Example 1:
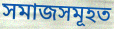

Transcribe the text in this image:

সমাজসমূহত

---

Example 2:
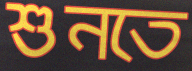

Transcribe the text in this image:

শুনতে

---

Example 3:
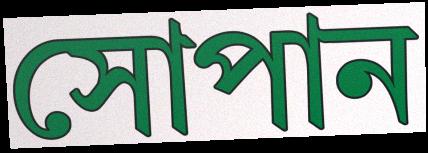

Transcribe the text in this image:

সোপান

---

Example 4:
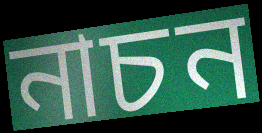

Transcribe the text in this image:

নাচন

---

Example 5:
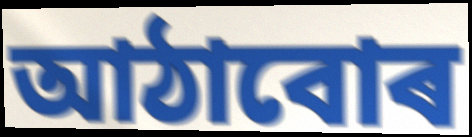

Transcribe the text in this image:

আঠাবোৰ